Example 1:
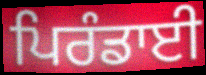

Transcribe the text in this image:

ਪਿਰੰਡਾਈ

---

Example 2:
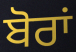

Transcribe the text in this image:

ਬੋਰਾਂ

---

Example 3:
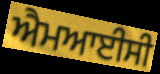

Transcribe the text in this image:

ਐਮਆਈਸੀ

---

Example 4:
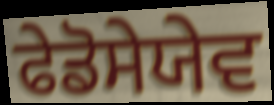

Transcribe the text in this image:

ਫੇਡੋਸੇਯੇਵ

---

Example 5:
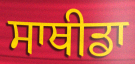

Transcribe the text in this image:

ਸਾਥੀਡਾ